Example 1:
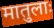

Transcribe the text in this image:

मातुलाः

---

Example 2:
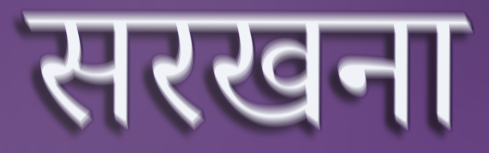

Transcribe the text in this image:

सरखना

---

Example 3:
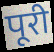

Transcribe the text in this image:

पूरी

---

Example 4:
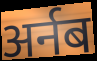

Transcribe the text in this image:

अर्नब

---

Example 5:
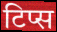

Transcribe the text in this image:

टिप्स